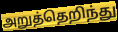
அறுத்தெறிந்து